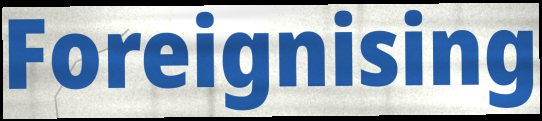
Foreignising